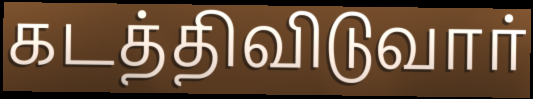
கடத்திவிடுவார்